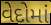
વેદોમાં